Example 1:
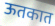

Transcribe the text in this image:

ऊतकात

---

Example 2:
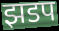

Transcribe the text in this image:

झडप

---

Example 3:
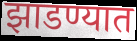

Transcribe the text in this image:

झाडण्यात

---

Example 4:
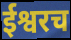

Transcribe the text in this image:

ईश्वरच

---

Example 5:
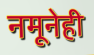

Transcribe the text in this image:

नमूनेही